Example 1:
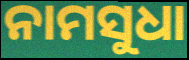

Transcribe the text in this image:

ନାମସୁଧା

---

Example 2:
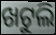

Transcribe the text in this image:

ଖଟୁଲି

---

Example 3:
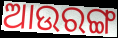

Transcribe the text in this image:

ଆଉରଙ୍ଗ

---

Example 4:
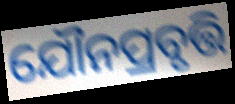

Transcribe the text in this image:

ଯୌନପ୍ରବୃତ୍ତି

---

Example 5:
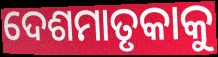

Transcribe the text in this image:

ଦେଶମାତୃକାକୁ